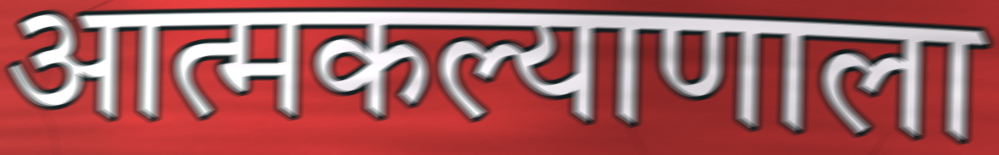
आत्मकल्याणाला